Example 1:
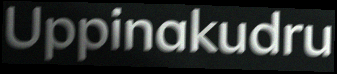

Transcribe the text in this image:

Uppinakudru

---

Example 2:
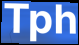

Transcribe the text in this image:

Tph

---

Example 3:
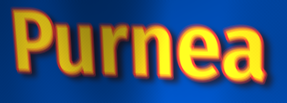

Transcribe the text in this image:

Purnea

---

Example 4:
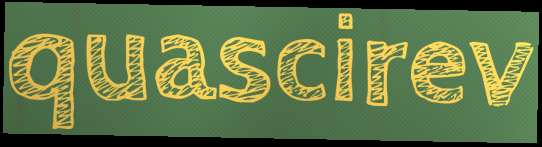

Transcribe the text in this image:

quascirev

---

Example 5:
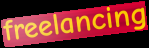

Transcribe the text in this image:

freelancing